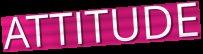
ATTITUDE